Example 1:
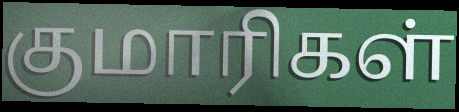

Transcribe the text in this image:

குமாரிகள்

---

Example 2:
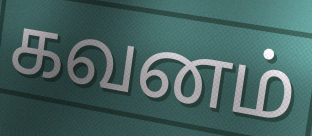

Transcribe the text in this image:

கவனம்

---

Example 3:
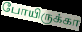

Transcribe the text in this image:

போயிருக்கா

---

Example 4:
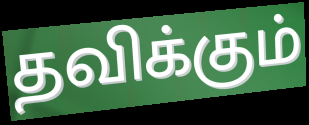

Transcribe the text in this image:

தவிக்கும்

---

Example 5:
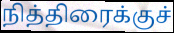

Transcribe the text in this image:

நித்திரைக்குச்